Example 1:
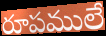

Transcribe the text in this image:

రూపములే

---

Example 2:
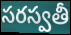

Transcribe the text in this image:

సరస్వతీ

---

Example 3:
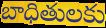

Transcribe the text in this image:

బాధితులకు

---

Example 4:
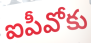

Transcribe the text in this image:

ఐపీవోకు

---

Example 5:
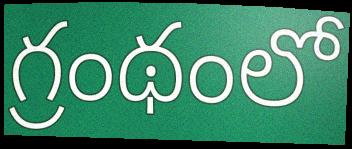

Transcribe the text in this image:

గ్రంథంలో